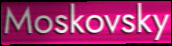
Moskovsky